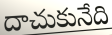
దాచుకునేది